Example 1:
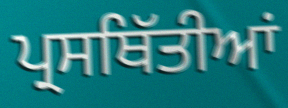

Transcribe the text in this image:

ਪ੍ਰਸਥਿੱਤੀਆਂ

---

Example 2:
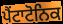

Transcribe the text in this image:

ਪੈਂਟਾਟੋਨਿਕ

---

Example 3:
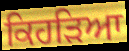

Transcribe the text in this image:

ਕਿਹੜਿਆ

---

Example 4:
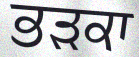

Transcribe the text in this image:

ਭੜਕਾ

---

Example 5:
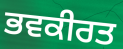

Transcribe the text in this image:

ਭਵਕੀਰਤ